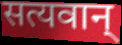
सत्यवान्